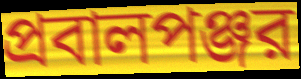
প্রবালপঞ্জর